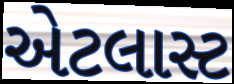
એટલાસ્ટ